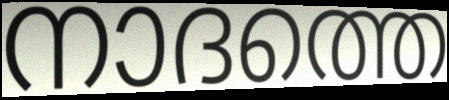
നാദത്തെ